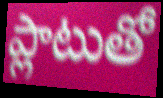
ప్లాటుతో